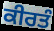
ਕੀਰਤੰ